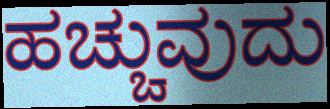
ಹಚ್ಚುವುದು